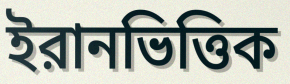
ইরানভিত্তিক